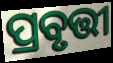
ପ୍ରବୃତ୍ତୀ